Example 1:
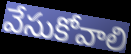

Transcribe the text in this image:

వేసుకోవాలి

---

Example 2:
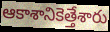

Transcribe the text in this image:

ఆకాశానికెత్తేశారు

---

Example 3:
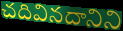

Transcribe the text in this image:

చదివినదానిని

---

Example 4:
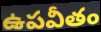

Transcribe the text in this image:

ఉపవీతం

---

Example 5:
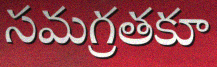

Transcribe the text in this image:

సమగ్రతకూ